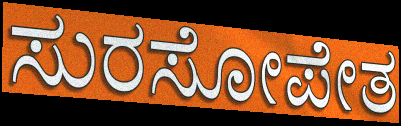
ಸುರಸೋಪೇತ